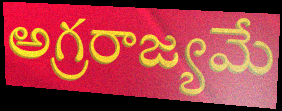
అగ్రరాజ్యమే